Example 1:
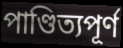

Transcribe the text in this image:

পাণ্ডিত্যপূর্ণ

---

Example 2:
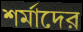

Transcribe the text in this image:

শর্মাদের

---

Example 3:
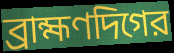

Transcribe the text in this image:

ব্রাহ্মণদিগের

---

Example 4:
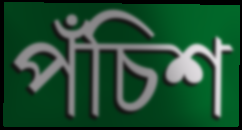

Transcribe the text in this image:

পঁচিশ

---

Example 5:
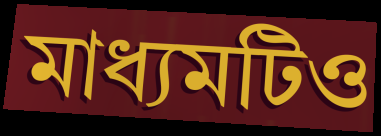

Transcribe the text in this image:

মাধ্যমটিও